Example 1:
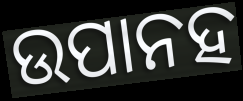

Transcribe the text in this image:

ଉପାନହ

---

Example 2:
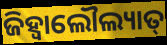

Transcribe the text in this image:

ଜିହ୍ଵାଲୌଲ୍ୟାତ୍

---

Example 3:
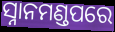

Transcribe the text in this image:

ସ୍ନାନମଣ୍ଡପରେ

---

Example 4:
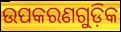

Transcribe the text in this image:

ଉପକରଣଗୁଡ଼ିକ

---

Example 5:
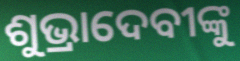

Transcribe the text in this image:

ଶୁଭ୍ରାଦେବୀଙ୍କୁ